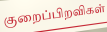
குறைப்பிறவிகள்